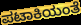
ಪಟಾಕಿಯಂತೆ